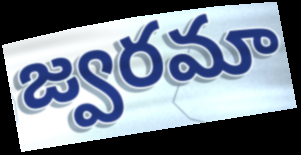
జ్వరమా